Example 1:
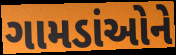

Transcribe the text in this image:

ગામડાંઓને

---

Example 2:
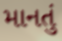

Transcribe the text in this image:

માનતું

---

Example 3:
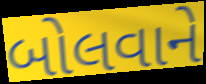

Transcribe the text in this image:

બોલવાને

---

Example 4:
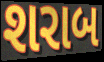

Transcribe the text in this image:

શરાબ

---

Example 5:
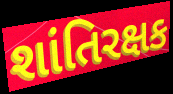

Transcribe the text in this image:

શાંતિરક્ષક